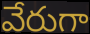
వేరుగా